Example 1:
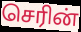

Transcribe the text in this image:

செரின்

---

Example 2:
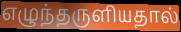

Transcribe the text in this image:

எழுந்தருளியதால்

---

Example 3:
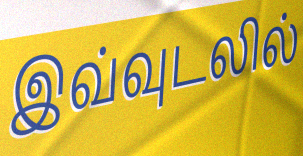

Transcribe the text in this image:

இவ்வுடலில்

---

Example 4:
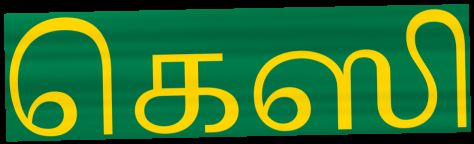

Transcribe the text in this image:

கெஸி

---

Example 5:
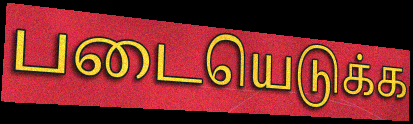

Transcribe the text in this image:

படையெடுக்க